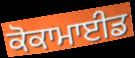
ਕੋਕਾਮਾਈਡ